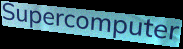
Supercomputer